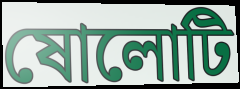
ষোলোটি